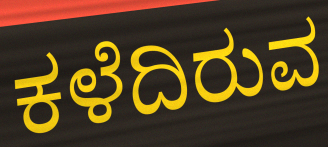
ಕಳೆದಿರುವ